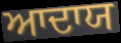
ਆਦਾਯ